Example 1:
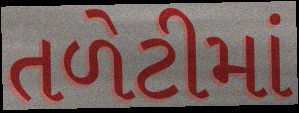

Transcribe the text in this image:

તળેટીમાં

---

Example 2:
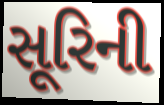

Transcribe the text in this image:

સૂરિની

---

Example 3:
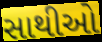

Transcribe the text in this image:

સાથીઓ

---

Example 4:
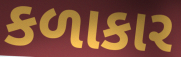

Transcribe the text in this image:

કળાકાર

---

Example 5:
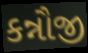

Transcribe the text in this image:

કન્નૌજી